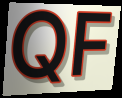
QF